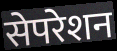
सेपरेशन